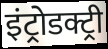
इंट्रोडक्ट्री